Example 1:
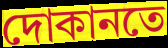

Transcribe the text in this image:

দোকানতে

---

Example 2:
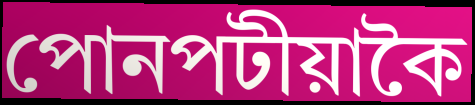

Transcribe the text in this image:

পোনপটীয়াকৈ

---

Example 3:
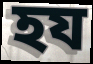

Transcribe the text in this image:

হয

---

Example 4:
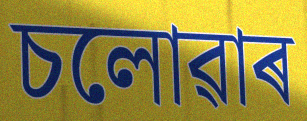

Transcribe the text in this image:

চলোৱাৰ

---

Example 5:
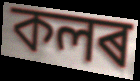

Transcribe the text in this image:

কলৰ